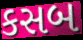
કસબ